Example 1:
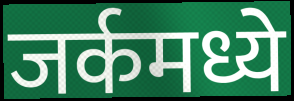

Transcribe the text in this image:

जर्कमध्ये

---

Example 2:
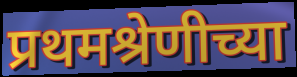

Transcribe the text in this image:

प्रथमश्रेणीच्या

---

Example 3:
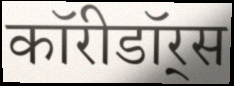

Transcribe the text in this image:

कॉरीडॉर्स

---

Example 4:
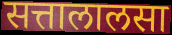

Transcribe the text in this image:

सत्तालालसा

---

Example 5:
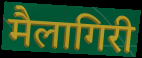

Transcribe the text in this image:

मैलागिरी